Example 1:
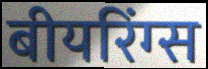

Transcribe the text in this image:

बीयरिंग्स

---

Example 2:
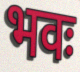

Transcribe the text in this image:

भवः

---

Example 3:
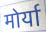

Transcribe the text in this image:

मोर्या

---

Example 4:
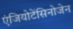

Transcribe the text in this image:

एंजियोटेंसिनोजेन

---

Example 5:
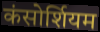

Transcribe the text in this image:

कंसोर्शियम